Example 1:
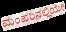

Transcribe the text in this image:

ಮಂಪರಿನಲ್ಲಿಯೇ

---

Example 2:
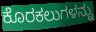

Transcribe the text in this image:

ಕೊರಕಲುಗಳನ್ನು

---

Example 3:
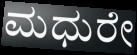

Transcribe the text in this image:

ಮಧುರೇ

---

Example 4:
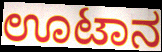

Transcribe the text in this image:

ಊಟಾನ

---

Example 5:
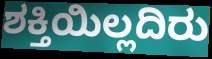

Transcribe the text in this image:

ಶಕ್ತಿಯಿಲ್ಲದಿರು